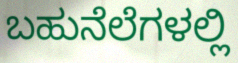
ಬಹುನೆಲೆಗಳಲ್ಲಿ